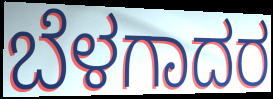
ಬೆಳಗಾದರ